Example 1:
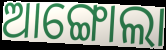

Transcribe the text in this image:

ଆଙ୍ଗୋଲା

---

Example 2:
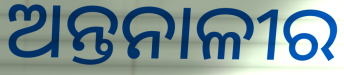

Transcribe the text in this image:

ଅନ୍ତନାଳୀର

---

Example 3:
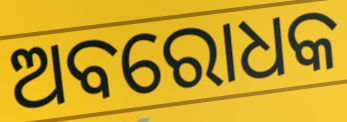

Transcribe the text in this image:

ଅବରୋଧକ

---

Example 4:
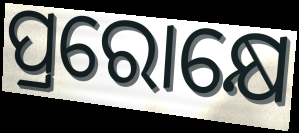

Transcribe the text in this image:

ପ୍ରରୋକ୍ଷେ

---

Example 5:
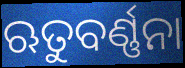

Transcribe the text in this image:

ଋତୁବର୍ଣ୍ଣନା